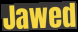
Jawed